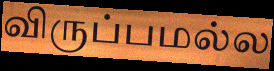
விருப்பமல்ல